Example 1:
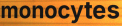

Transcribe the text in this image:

monocytes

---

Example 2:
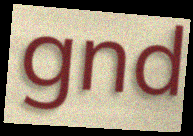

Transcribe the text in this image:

gnd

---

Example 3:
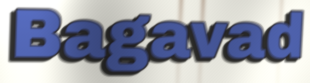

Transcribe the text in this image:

Bagavad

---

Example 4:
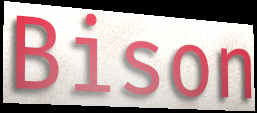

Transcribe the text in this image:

Bison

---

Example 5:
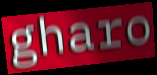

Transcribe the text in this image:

gharo